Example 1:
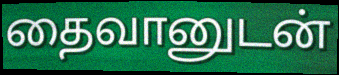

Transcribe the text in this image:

தைவானுடன்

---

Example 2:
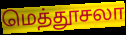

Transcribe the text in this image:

மெத்தூசலா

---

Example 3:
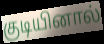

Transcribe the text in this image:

குடியினால்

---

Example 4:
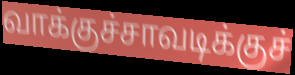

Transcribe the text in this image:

வாக்குச்சாவடிக்குச்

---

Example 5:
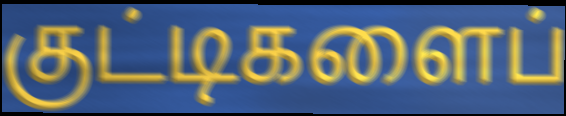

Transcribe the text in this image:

குட்டிகளைப்